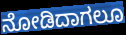
ನೋಡಿದಾಗಲೂ